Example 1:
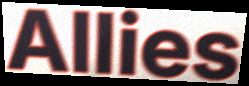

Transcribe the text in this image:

Allies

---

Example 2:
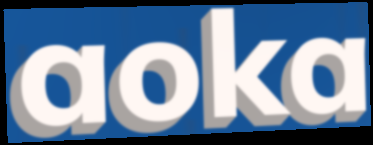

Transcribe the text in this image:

aoka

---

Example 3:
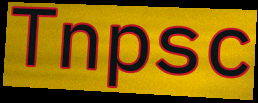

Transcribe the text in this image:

Tnpsc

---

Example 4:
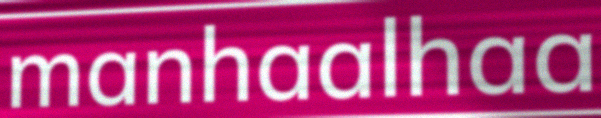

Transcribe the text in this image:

manhaalhaa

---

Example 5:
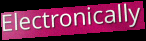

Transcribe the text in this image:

Electronically